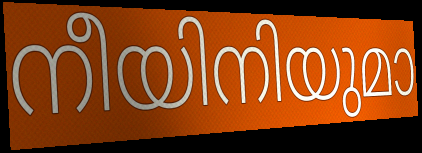
നീയിനിയുമാ